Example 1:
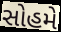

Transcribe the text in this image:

સોહમે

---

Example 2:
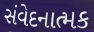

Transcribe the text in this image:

સંવેદનાત્મક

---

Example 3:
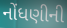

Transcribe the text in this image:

નોંધણીની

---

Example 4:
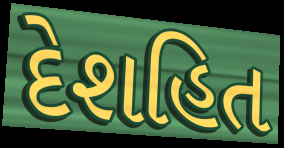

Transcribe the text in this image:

દેશહિત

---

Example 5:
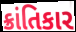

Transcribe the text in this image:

ક્રાંતિકાર